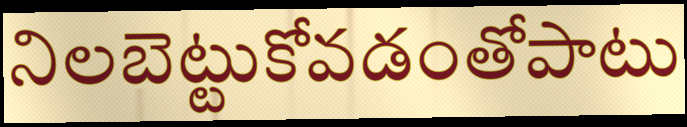
నిలబెట్టుకోవడంతోపాటు